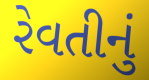
રેવતીનું